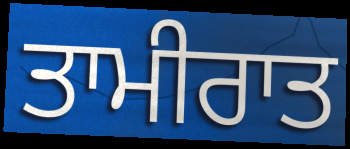
ਤਾਮੀਰਾਤ